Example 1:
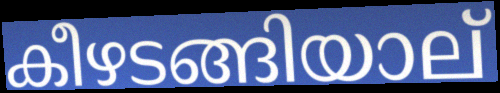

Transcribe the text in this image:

കീഴടങ്ങിയാല്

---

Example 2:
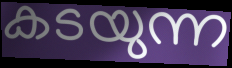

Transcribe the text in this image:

കടയുന്ന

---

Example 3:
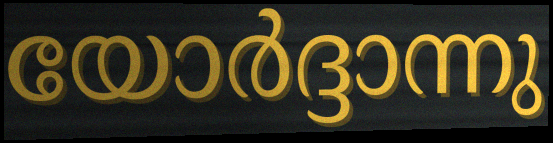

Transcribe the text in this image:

യോർദ്ദാന്നു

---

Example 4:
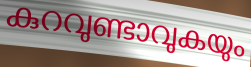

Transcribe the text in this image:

കുറവുണ്ടാവുകയും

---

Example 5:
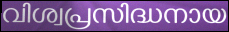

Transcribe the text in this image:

വിശ്വപ്രസിദ്ധനായ